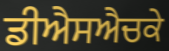
ਡੀਐਸਐਚਕੇ